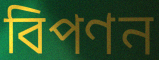
বিপণন